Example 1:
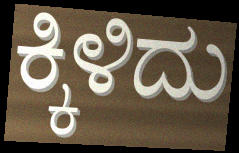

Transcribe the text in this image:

ಕ್ಕಿಳಿದು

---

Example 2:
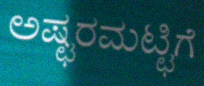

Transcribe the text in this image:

ಅಷ್ಟರಮಟ್ಟಿಗೆ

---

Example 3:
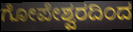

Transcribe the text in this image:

ಗೋಪೇಶ್ವರದಿಂದ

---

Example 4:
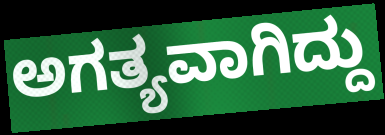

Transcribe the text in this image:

ಅಗತ್ಯವಾಗಿದ್ದು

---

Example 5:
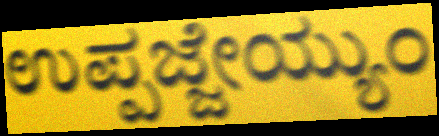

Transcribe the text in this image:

ಉಪ್ಪಜ್ಜೇಯ್ಯುಂ